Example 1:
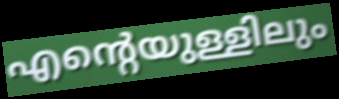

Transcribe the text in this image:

എന്റെയുള്ളിലും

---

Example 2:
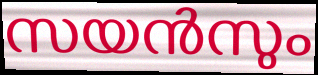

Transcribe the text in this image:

സയൻസും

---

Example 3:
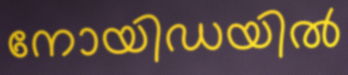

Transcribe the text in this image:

നോയിഡയിൽ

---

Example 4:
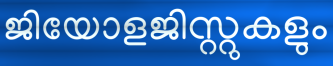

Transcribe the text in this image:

ജിയോളജിസ്റ്റുകളും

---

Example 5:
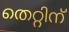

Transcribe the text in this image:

തെറ്റിന്